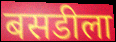
बसडीला